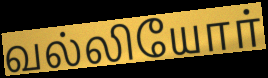
வல்லியோர்